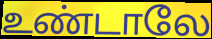
உண்டாலே